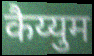
कैय्युम